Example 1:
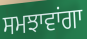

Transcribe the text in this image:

ਸਮਝਾਵਾਂਗਾ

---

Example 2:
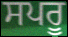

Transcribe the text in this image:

ਸਪਰੂ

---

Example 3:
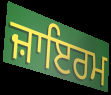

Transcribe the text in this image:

ਜ਼ਾਇਰਮ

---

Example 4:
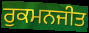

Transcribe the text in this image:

ਰੁਕਮਨਜੀਤ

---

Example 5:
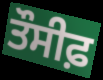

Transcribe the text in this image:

ਤੌਸੀਫ਼